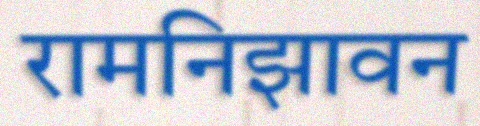
रामनिझावन